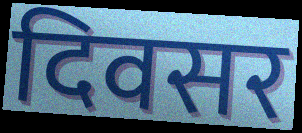
दिवसर